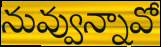
నువ్వున్నావో